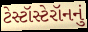
ટેસ્ટૉસ્ટેરૉનનું